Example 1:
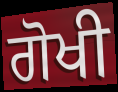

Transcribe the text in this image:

ਗੋਖੀ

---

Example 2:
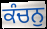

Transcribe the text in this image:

ਕੰਚਨੁ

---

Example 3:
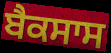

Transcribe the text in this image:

ਬੈਕਸਾਸ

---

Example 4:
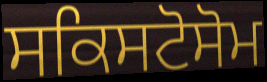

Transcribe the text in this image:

ਸਕਿਸਟੋਸੋਮ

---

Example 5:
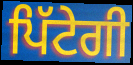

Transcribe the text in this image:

ਪਿੱਟੇਗੀ